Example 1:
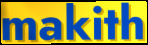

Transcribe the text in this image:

makith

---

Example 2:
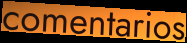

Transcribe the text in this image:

comentarios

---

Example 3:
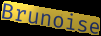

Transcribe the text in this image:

Brunoise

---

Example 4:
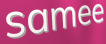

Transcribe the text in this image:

samee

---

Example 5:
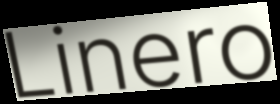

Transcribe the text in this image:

Linero